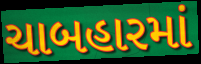
ચાબહારમાં